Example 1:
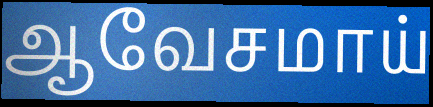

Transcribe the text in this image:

ஆவேசமாய்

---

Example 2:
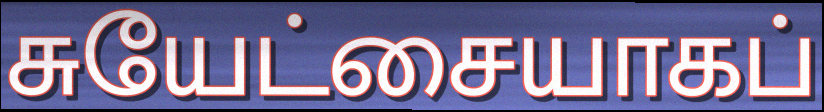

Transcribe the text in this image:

சுயேட்சையாகப்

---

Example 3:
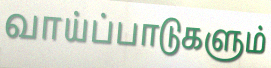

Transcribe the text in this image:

வாய்ப்பாடுகளும்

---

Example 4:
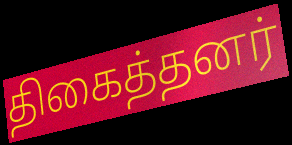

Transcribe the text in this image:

திகைத்தனர்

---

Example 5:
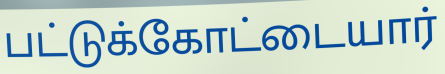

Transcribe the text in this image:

பட்டுக்கோட்டையார்